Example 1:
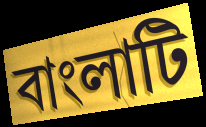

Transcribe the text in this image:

বাংলাটি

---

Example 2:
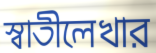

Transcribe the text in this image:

স্বাতীলেখার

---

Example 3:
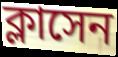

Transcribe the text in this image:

ক্লাসেন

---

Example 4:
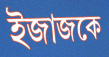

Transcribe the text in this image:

ইজাজকে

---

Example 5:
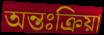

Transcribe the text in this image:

অন্তঃক্রিয়া